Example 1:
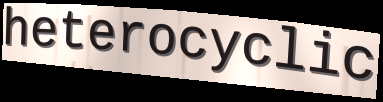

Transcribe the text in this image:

heterocyclic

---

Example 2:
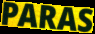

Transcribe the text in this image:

PARAS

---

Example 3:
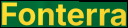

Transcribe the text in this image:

Fonterra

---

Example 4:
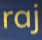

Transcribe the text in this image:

raj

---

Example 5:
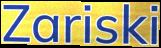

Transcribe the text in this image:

Zariski